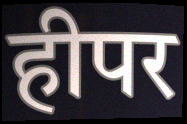
हीपर